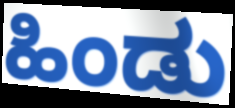
ಹಿಂಡು